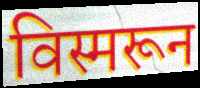
विस्मरून